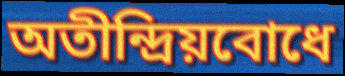
অতীন্দ্রিয়বোধে